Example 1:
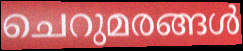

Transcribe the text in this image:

ചെറുമരങ്ങൾ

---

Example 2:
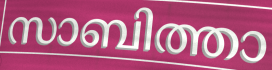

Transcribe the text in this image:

സാബിത്താ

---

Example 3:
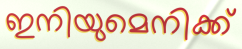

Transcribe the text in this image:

ഇനിയുമെനിക്ക്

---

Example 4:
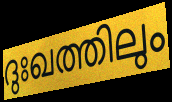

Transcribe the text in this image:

ദുഃഖത്തിലും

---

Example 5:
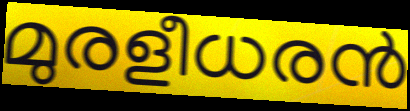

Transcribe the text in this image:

മുരളീധരൻ